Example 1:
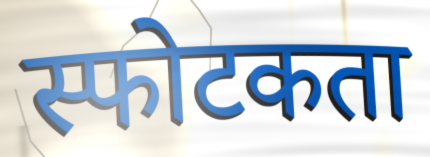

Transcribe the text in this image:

स्फोटकता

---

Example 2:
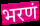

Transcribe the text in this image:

भरणं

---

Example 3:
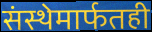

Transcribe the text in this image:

संस्थेमार्फतही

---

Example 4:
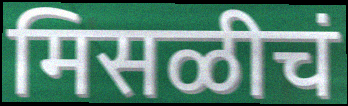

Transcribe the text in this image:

मिसळीचं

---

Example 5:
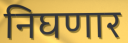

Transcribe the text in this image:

निघणार